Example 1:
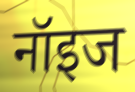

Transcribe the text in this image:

नॉइज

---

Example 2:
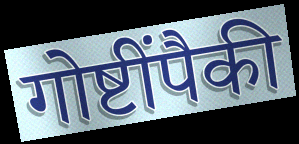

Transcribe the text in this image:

गोष्टींपैकी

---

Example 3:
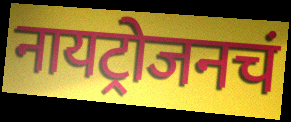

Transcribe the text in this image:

नायट्रोजनचं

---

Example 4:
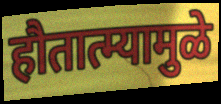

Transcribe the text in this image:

हौतात्म्यामुळे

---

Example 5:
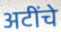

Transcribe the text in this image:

अटींचे